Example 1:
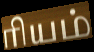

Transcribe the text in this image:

ரியம்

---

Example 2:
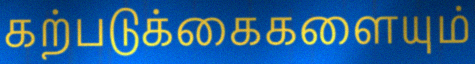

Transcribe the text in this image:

கற்படுக்கைகளையும்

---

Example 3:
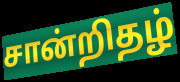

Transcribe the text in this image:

சான்றிதழ்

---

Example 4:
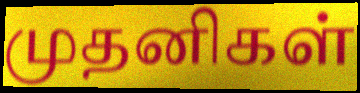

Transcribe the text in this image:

முதனிகள்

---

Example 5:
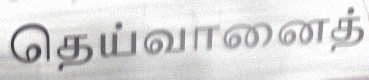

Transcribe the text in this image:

தெய்வானைத்